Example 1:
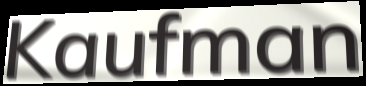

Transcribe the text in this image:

Kaufman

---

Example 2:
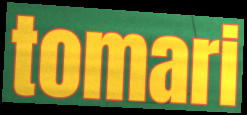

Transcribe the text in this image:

tomari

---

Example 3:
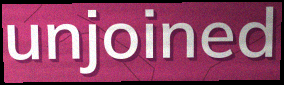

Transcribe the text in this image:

unjoined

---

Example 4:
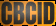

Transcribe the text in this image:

CBCID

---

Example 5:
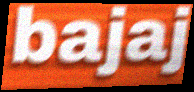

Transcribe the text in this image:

bajaj